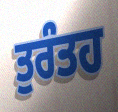
ਤੁਰੰਤਹ